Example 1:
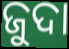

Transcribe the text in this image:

ଜୁଦା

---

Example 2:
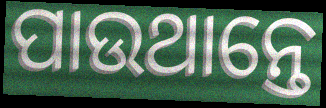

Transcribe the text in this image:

ପାଉଥାନ୍ତେ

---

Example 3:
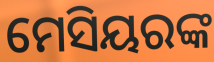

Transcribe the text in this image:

ମେସିୟରଙ୍କ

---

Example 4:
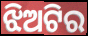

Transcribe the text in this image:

ଝିଅଟିର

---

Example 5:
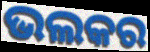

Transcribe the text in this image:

ଭଲକର